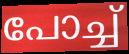
പോച്ച്